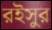
রইসুর